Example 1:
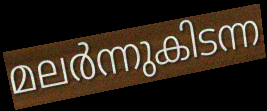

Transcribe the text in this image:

മലർന്നുകിടന്ന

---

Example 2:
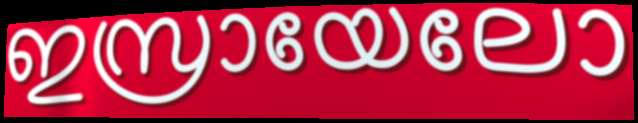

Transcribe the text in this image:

ഇസ്രായേലോ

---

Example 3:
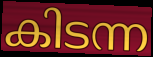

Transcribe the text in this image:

കിടന്ന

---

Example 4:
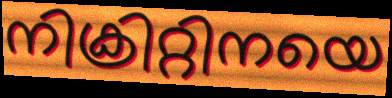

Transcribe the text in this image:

നിക്രിറ്റിനയെ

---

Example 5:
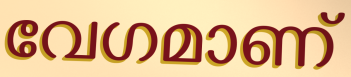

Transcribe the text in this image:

വേഗമാണ്